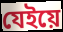
যেইয়ে